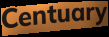
Centuary